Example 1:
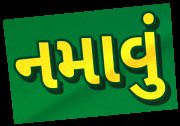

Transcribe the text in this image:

નમાવું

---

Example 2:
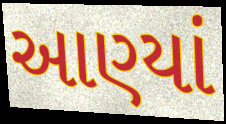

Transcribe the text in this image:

આણ્યાં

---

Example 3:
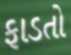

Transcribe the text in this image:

ફાડતો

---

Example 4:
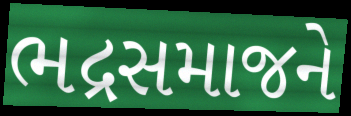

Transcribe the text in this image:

ભદ્રસમાજને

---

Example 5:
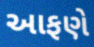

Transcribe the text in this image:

આફણે